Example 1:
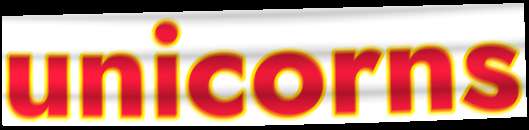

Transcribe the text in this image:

unicorns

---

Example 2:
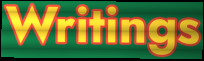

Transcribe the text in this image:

Writings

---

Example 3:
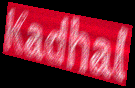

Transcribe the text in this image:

Kadhal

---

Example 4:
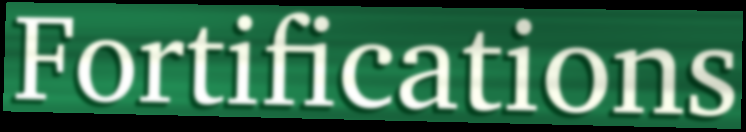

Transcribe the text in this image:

Fortifications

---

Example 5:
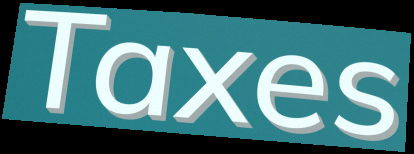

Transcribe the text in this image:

Taxes